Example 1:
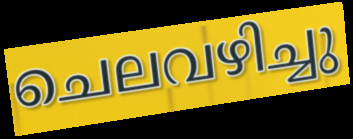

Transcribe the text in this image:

ചെലവഴിച്ചു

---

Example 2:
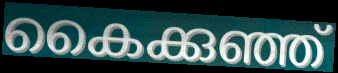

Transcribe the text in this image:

കൈക്കുഞ്ഞ്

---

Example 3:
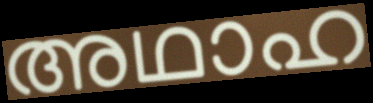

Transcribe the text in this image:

അഥാഹ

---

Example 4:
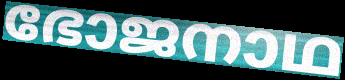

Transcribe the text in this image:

ഭോജനാഥ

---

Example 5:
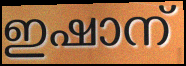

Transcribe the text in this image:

ഇഷാന്